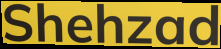
Shehzad